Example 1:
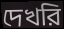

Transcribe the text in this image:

দেখরি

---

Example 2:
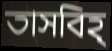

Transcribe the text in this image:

তাসবিহ্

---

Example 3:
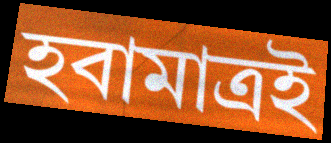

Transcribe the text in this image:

হবামাত্রই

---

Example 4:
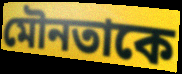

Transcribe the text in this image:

মৌনতাকে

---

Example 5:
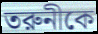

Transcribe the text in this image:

তরুনীকে